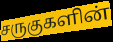
சருகுகளின்